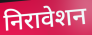
निरावेशन